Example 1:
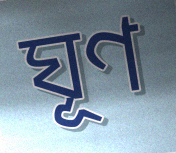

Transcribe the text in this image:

ঘূণ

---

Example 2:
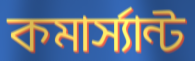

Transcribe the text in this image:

কমার্স্যান্ট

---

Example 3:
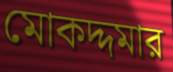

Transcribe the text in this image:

মোকদ্দমার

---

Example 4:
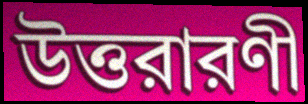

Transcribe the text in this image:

উত্তরারণী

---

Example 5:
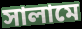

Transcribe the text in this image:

সালামে